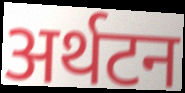
अर्थटन